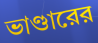
ভাণ্ডারের